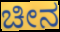
ಚೀನ